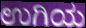
ಉಗಿಯ